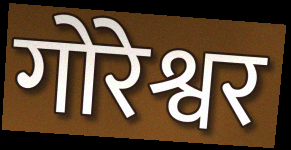
गोरेश्वर